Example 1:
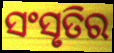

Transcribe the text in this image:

ସଂସୃତିର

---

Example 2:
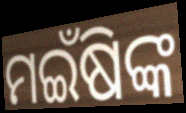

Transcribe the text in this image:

ମଇଁଷିଙ୍କ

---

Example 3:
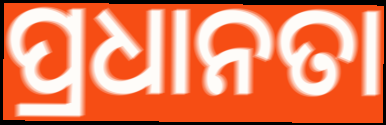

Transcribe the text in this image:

ପ୍ରଧାନତା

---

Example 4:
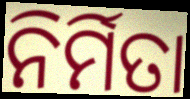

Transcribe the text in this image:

ନିର୍ମିତା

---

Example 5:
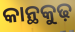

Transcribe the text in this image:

କାନ୍ଥକୁଢ଼